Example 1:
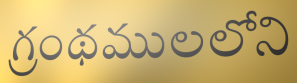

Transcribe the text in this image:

గ్రంథములలోని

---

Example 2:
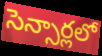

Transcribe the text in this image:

సెన్సార్లలో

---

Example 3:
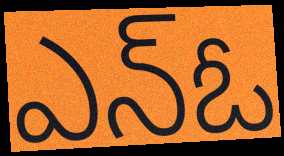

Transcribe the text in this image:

ఎన్ఓ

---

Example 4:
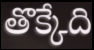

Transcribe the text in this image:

తొక్కేది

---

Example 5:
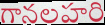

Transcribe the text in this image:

గానలహరి